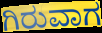
ಗಿರುವಾಗ